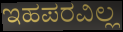
ಇಹಪರವಿಲ್ಲ